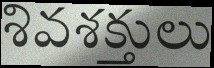
శివశక్తులు